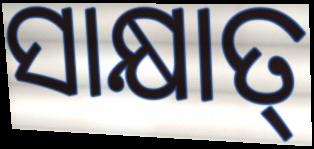
ସାକ୍ଷାତ୍